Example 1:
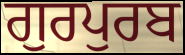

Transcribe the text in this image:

ਗੁਰਪੁਰਬ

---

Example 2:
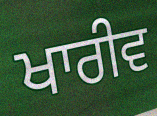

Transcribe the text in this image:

ਖਾਰੀਵ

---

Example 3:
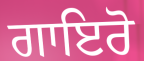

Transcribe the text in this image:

ਗਾਇਰੋ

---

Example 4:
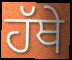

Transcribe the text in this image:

ਹੱਥੇ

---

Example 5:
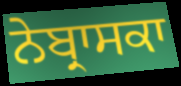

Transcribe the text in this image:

ਨੇਬ੍ਰਾਸਕਾ